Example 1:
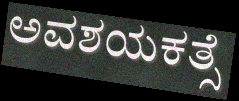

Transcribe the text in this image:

ಅವಶಯಕತ್ಸೆ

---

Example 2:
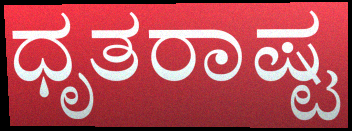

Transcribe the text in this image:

ಧೃತರಾಷ್ಟ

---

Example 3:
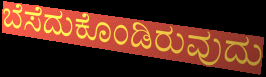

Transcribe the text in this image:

ಬೆಸೆದುಕೊಂಡಿರುವುದು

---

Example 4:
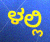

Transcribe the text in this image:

ಳಲ್ಲಿ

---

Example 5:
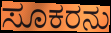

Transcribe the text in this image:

ಸೂಕರನು